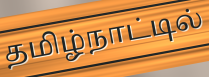
தமிழ்நாட்டில்